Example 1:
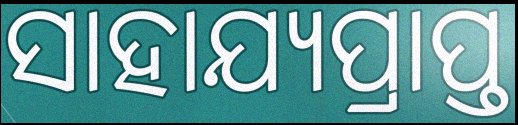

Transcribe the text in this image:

ସାହାଯ୍ୟପ୍ରାପ୍ତ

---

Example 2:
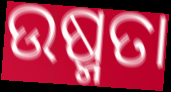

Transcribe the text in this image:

ଉଷ୍ମତା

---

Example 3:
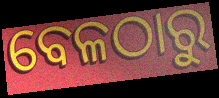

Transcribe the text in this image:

ବେଳଠାରୁ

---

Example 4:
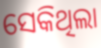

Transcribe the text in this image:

ସେକିଥିଲା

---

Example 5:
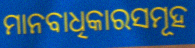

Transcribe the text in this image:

ମାନବାଧିକାରସମୂହ